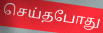
செய்தபோது